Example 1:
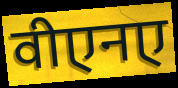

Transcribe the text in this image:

वीएनए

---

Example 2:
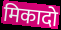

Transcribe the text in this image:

मिकादो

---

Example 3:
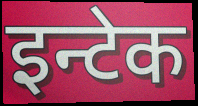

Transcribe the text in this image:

इन्टेक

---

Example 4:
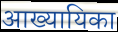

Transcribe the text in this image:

आख्यायिका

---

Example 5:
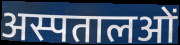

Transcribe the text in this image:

अस्पतालओं